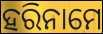
ହରିନାମେ